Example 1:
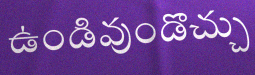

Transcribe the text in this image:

ఉండివుండొచ్చు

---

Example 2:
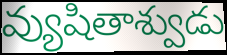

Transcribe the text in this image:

వ్యుషితాశ్వుడు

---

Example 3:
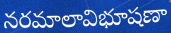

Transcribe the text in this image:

నరమాలావిభూషణా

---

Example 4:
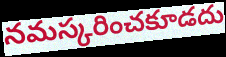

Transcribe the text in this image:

నమస్కరించకూడదు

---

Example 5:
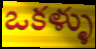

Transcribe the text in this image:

ఒకళ్ళు